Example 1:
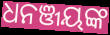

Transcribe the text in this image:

ଧନଞ୍ଜୟଙ୍କ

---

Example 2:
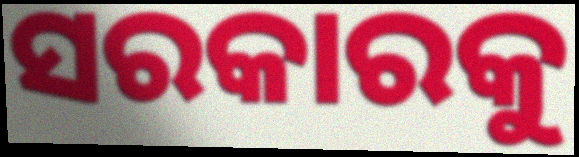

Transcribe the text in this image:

ସରକାରକୁ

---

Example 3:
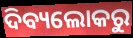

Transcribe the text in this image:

ଦିବ୍ୟଲୋକରୁ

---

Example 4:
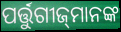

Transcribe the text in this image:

ପର୍ତ୍ତୁଗୀଜ୍‌ମାନଙ୍କ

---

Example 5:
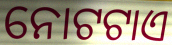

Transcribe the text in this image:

ନୋଟଟାଏ